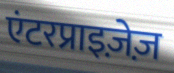
एंटरप्राइज़ेज़